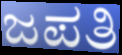
ಜಪತಿ